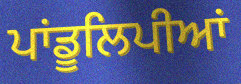
ਪਾਂਡੂਲਿਪੀਆਂ